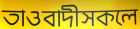
তাওবাদীসকলে